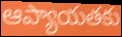
ఆప్యాయతకు